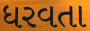
ધરવતા